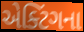
એક્ટિંગના